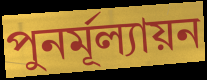
পুনর্মূল্যায়ন